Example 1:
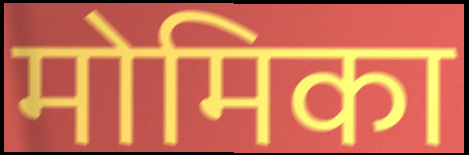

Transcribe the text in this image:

मोमिका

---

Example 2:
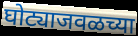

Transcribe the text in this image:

घोट्याजवळच्या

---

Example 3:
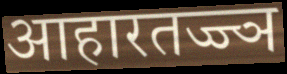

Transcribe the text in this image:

आहारतज्ज्ञ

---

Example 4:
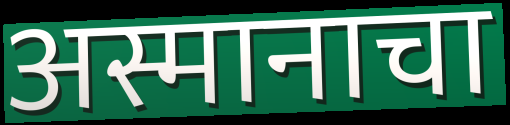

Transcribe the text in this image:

अस्मानाचा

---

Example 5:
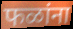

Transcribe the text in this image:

फळांना